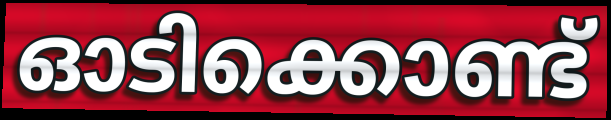
ഓടിക്കൊണ്ട്